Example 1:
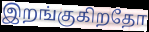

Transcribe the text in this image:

இறங்குகிறதோ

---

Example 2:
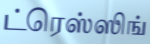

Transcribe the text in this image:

ட்ரெஸ்ஸிங்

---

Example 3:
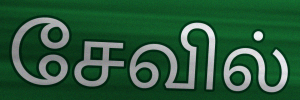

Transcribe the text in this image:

சேவில்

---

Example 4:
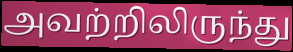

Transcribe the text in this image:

அவற்றிலிருந்து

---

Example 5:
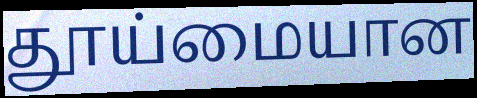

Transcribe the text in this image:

தூய்மையான